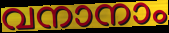
വനാനാം